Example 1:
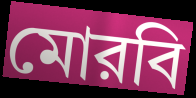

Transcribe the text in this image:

মোরবি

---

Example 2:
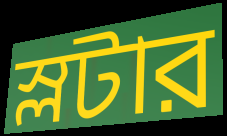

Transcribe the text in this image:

স্লটার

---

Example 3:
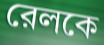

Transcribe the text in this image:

রেলকে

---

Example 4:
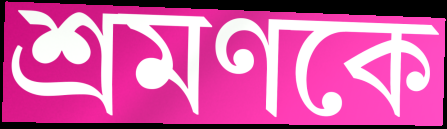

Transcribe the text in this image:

শ্রমণকে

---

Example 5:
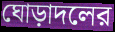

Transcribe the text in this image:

ঘোড়াদলের